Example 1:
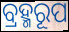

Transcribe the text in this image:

ବ୍ରହ୍ମରୂପ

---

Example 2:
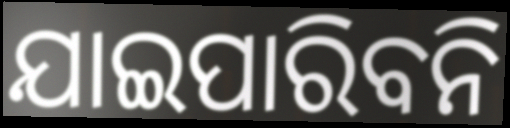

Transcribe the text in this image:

ଯାଇପାରିବନି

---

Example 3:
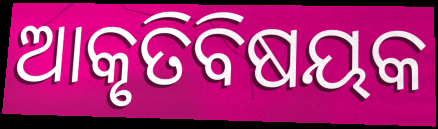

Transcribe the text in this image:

ଆକୃତିବିଷୟକ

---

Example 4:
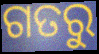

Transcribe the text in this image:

ଗତରୁ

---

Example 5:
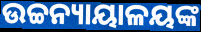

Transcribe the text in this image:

ଉଚ୍ଚନ୍ୟାୟାଳୟଙ୍କ